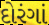
દોરંગાં